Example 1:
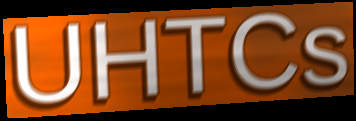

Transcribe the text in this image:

UHTCs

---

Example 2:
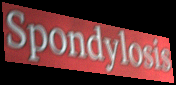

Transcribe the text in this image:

Spondylosis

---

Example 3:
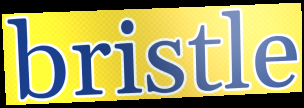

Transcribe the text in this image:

bristle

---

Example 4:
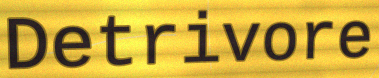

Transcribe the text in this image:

Detrivore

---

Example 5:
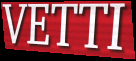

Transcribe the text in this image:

VETTI